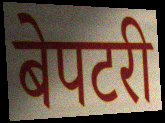
बेपटरी